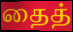
தைத்